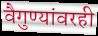
वैगुण्यांवरही